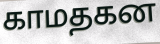
காமதகன